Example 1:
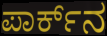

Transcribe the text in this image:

ಪಾರ್ಕ್‌ನ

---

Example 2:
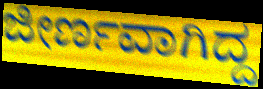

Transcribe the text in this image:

ಜೀರ್ಣವಾಗಿದ್ದ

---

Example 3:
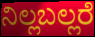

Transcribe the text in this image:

ನಿಲ್ಲಬಲ್ಲರೆ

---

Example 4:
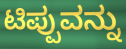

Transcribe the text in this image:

ಟಿಪ್ಪುವನ್ನು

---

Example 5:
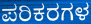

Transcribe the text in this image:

ಪರಿಕರಗಳ